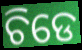
ଚିଡେ